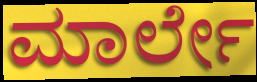
ಮಾರ್ಲೇ